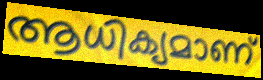
ആധിക്യമാണ്